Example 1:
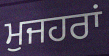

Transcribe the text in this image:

ਮੁਜਹਰਾਂ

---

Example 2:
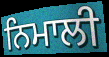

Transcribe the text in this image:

ਨਿਮਾਲੀ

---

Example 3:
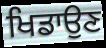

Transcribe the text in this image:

ਖਿਡਾਉਣ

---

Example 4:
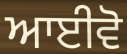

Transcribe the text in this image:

ਆਈਵੋ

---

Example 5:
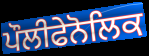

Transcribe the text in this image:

ਪੌਲੀਫੇਨੋਲਿਕ